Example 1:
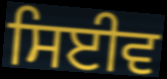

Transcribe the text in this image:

ਸਿਈਵ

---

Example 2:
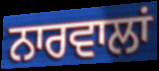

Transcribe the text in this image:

ਨਾਰਵਾਲਾਂ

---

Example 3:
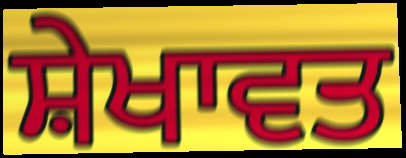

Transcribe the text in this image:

ਸ਼ੇਖਾਵਤ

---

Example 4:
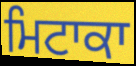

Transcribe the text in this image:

ਮਿਟਾਕਾ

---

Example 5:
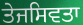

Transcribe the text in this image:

ਤੇਜਸਿਵਤਾ